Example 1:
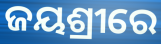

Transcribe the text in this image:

ଜୟଶ୍ରୀରେ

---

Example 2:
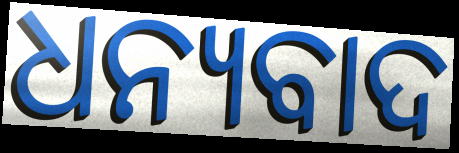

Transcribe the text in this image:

ଧନ୍ଯବାଦ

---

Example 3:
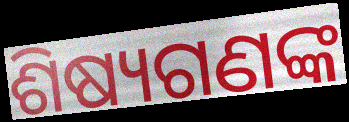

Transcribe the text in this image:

ଶିଷ୍ୟଗଣଙ୍କ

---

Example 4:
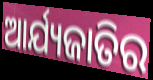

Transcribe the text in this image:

ଆର୍ଯ୍ୟଜାତିର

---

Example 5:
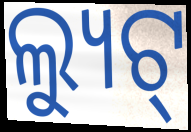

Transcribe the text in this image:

ଲ୍ୟୁଟ୍